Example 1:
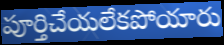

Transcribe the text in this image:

పూర్తిచేయలేకపోయారు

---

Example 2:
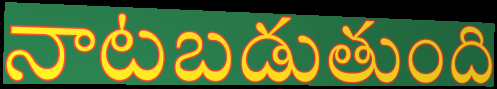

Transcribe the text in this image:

నాటబడుతుంది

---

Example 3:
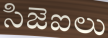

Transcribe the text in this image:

సిజెఐలు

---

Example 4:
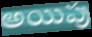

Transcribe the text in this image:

అయిపు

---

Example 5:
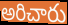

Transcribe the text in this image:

అరిచారు